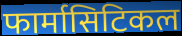
फार्मासिटिकल